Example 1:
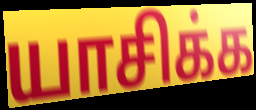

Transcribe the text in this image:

யாசிக்க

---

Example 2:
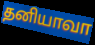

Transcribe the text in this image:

தனியாவா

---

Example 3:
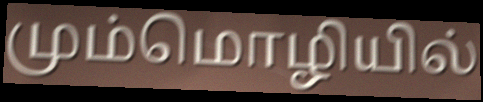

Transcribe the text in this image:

மும்மொழியில்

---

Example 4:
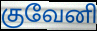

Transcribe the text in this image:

குவேனி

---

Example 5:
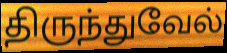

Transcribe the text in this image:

திருந்துவேல்